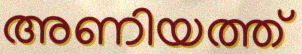
അണിയത്ത്